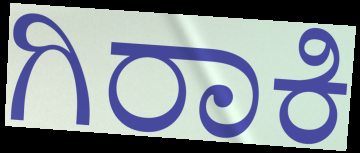
ಗಿರಾಕಿ